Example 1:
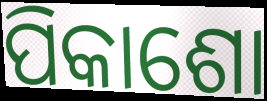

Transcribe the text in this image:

ପିକାଶୋ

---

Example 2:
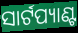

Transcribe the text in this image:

ସାର୍ଟପ୍ୟାଣ୍ଟ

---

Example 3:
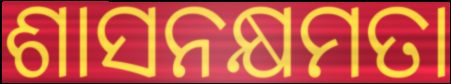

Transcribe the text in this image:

ଶାସନକ୍ଷମତା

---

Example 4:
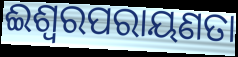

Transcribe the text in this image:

ଈଶ୍ୱରପରାୟଣତା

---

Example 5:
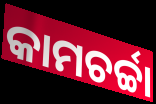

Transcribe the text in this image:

କାମଚର୍ଚ୍ଚା